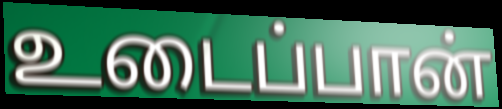
உடைப்பான்